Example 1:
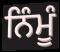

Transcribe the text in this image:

ਨਿੰਮੂੰ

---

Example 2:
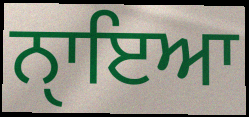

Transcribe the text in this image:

ਨੑਾਇਆ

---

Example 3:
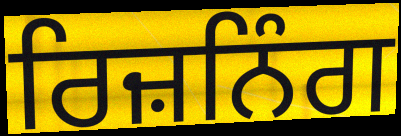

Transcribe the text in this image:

ਰਿਜ਼ਨਿੰਗ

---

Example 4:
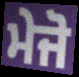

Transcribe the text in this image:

ਮੇਜੋ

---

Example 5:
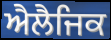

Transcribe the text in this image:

ਐਲੈਜਿਕ